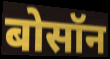
बोसॉन